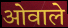
ओवाले